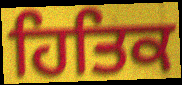
ਹਿਤਿਕ